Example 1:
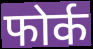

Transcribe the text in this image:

फोर्क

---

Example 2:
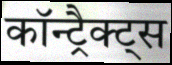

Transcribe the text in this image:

कॉन्‍ट्रैक्‍ट्स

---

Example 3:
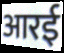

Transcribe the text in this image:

आरई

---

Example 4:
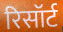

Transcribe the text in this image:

रिसॉर्ट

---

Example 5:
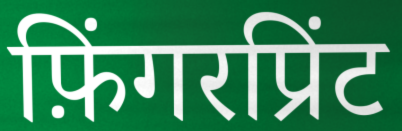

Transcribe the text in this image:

फ़िंगरप्रिंट